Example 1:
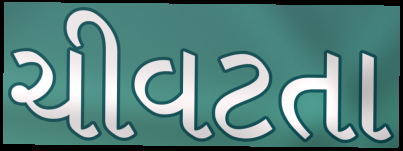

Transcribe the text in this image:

ચીવટતા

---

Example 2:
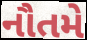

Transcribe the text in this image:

નૌતમે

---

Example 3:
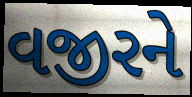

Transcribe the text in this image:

વજીરને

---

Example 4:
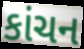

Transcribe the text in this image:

કાંચન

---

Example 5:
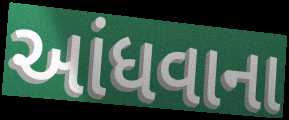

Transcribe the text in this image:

આંધવાના